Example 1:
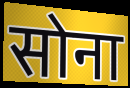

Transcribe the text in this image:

सोना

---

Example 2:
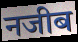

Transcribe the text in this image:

नजीब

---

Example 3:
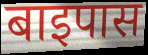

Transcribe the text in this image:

बाइपास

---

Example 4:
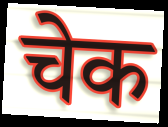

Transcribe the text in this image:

चेक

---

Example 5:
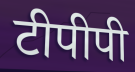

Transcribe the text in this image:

टीपीपी